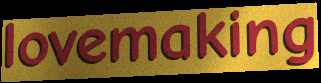
lovemaking